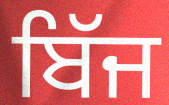
ਬਿੱਜ